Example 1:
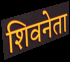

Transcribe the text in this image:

शिवनेता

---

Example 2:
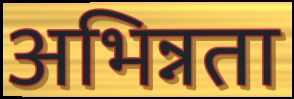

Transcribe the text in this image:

अभिन्नता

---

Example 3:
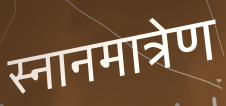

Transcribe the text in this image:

स्नानमात्रेण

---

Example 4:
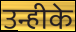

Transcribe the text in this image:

उन्हीके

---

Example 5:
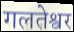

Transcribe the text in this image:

गलतेश्वर